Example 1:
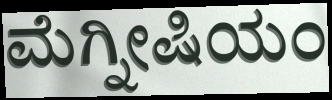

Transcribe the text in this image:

ಮೆಗ್ನೀಷಿಯಂ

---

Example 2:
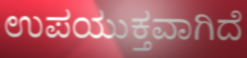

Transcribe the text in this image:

ಉಪಯುಕ್ತವಾಗಿದೆ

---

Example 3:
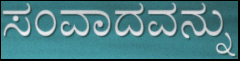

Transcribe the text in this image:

ಸಂವಾದವನ್ನು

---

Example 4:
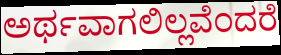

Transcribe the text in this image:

ಅರ್ಥವಾಗಲಿಲ್ಲವೆಂದರೆ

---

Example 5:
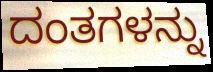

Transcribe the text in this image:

ದಂತಗಳನ್ನು